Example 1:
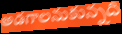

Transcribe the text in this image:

అడగాలనుకున్నది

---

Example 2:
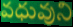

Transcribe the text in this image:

వధువుని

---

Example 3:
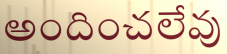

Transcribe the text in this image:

అందించలేవు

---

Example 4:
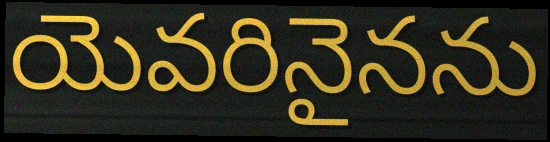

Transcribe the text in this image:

యెవరినైనను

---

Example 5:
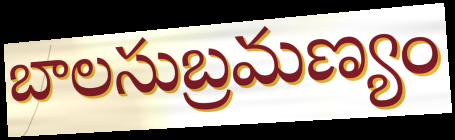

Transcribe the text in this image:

బాలసుబ్రమణ్యం